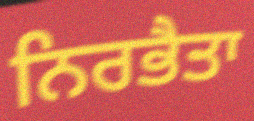
ਨਿਰਭੈਤਾ